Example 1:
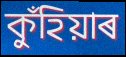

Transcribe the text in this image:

কুঁহিয়াৰ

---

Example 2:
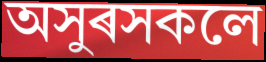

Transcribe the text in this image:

অসুৰসকলে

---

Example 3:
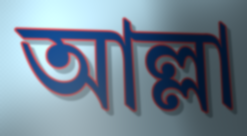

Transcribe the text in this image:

আল্লা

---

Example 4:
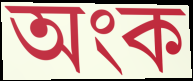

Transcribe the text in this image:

অংক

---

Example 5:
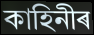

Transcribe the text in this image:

কাহিনীৰ